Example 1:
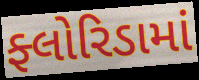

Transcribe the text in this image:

ફ્લોરિડામાં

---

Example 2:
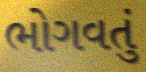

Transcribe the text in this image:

ભોગવતું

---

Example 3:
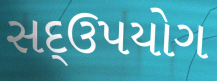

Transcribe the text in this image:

સદ્ઉપયોગ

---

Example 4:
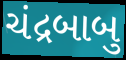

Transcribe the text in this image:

ચંદ્રબાબુ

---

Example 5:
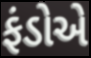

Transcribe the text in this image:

ફંડોએ